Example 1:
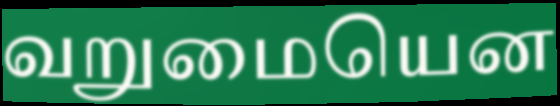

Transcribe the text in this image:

வறுமையென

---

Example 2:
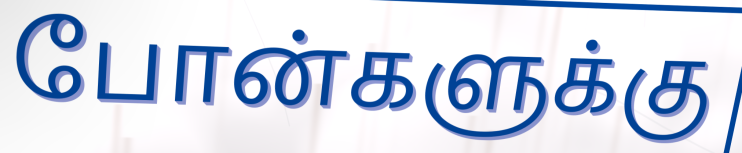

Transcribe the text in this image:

போன்களுக்கு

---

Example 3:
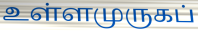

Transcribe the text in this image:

உள்ளமுருகப்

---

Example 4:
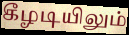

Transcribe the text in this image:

கீழடியிலும்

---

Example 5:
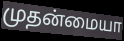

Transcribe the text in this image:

முதன்மையா